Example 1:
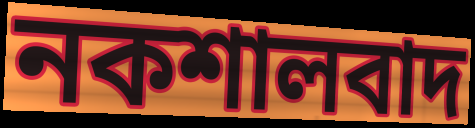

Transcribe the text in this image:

নকশালবাদ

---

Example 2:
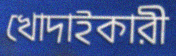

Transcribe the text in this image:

খোদাইকারী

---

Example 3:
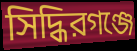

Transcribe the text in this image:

সিদ্ধিরগঞ্জে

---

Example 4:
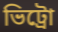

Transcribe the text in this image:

ভিট্রো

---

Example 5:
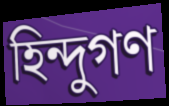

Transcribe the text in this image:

হিন্দুগণ